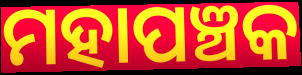
ମହାପଞ୍ଚକ